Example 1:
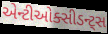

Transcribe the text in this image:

એન્ટીઓક્સીડન્ટ્સ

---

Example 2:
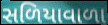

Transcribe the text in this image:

સળિયાવાળા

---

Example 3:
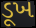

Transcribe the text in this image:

ડૂખ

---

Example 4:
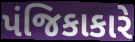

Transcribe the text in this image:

પંજિકાકારે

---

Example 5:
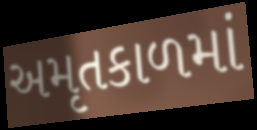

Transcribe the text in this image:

અમૃતકાળમાં